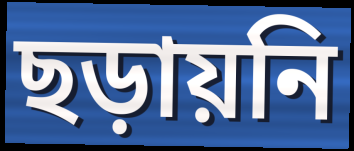
ছড়ায়নি